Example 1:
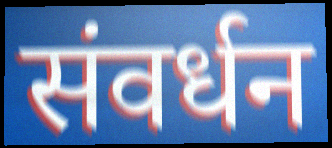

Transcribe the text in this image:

संवर्धन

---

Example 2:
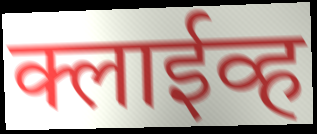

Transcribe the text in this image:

क्लाईव्ह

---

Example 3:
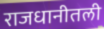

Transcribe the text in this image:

राजधानीतली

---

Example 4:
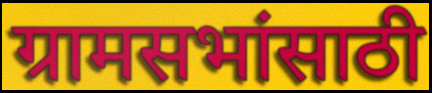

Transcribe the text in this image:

ग्रामसभांसाठी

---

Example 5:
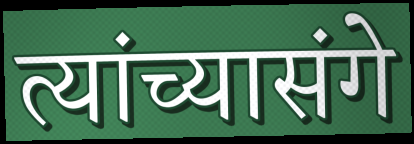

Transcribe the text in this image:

त्यांच्यासंगे